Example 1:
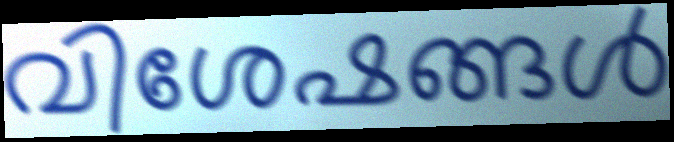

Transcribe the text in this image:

വിശേഷങ്ങൾ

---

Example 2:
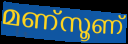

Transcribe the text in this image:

മണ്സൂണ്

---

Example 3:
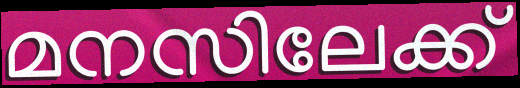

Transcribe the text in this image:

മനസിലേക്ക്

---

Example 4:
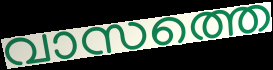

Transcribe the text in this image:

വാസത്തെ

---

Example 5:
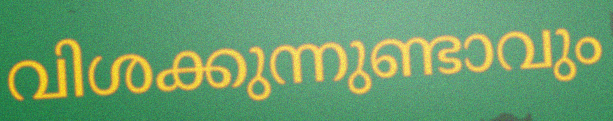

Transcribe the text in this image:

വിശക്കുന്നുണ്ടാവും